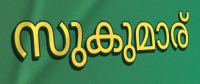
സുകുമാര്